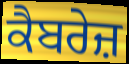
ਕੈਬਰੇਜ਼